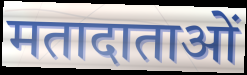
मतादाताओं